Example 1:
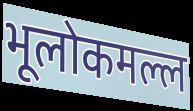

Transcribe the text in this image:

भूलोकमल्ल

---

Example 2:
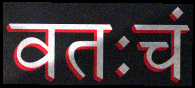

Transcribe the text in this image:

वतःचं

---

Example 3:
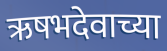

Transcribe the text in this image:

ऋषभदेवाच्या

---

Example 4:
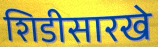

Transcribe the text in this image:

शिडीसारखे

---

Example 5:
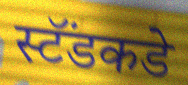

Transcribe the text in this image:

स्टॅंडकडे